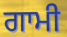
ਗਾਮੀ